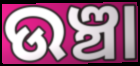
ଉଞ୍ଚା